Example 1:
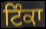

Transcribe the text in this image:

ਟਿੰਕਾ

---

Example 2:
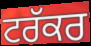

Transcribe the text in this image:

ਟਰੱਕਰ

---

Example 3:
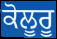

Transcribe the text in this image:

ਕੋਲੂਰੂ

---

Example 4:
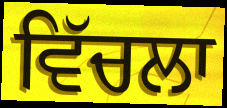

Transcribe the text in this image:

ਵਿੱਚਲਾ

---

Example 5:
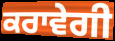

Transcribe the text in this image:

ਕਰਾਵੇਗੀ